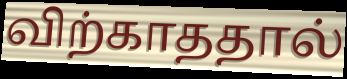
விற்காததால்